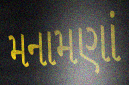
મનામણાં